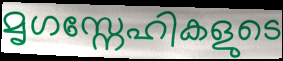
മൃഗസ്നേഹികളുടെ